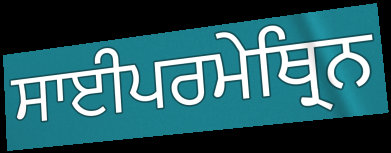
ਸਾਈਪਰਮੇਥ੍ਰਿਨ